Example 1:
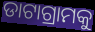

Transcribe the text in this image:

ଡାଟାଗ୍ରାମକୁ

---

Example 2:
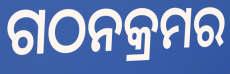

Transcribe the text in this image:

ଗଠନକ୍ରମର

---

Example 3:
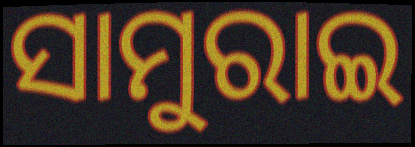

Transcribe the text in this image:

ସାମୁରାଇ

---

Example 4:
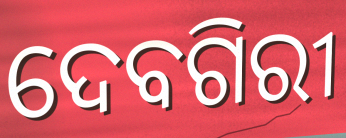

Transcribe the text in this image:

ଦେବଗିରୀ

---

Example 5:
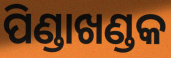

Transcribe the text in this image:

ପିଣ୍ଡାଖଣ୍ଡକ